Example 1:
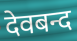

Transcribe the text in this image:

देवबन्द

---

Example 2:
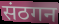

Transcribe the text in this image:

संठगन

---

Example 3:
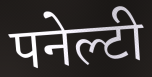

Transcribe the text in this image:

पनेल्टी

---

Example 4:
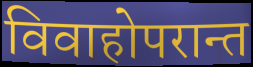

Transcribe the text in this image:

विवाहोपरान्त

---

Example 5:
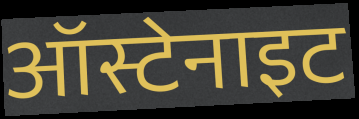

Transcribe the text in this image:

ऑस्टेनाइट